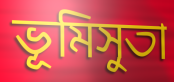
ভূমিসুতা